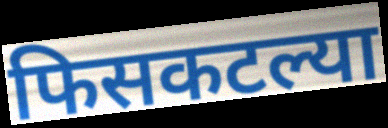
फिसकटल्या